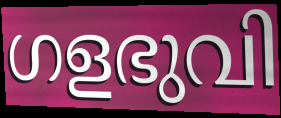
ഗളഭുവി